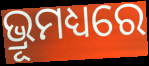
ଭ୍ରୂମଧ୍ୟରେ